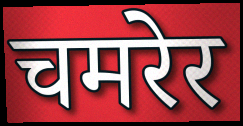
चमरेर